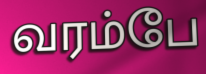
வரம்பே